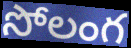
సోలంగ